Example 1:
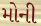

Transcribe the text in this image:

મોની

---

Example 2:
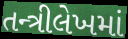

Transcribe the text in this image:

તન્ત્રીલેખમાં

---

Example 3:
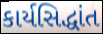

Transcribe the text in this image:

કાર્યસિદ્ધાંત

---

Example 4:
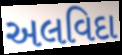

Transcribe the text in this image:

અલવિદા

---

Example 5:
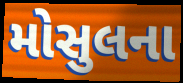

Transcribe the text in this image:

મોસુલના